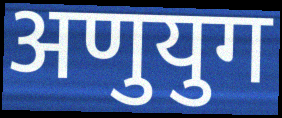
अणुयुग